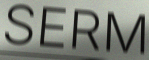
SERM